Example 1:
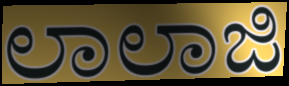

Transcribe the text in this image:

ಲಾಲಾಜಿ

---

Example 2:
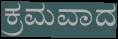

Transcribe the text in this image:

ಕ್ರಮವಾದ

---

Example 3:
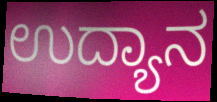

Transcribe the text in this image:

ಉದ್ಯಾನ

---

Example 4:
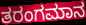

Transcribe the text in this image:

ತರಂಗಮಾನ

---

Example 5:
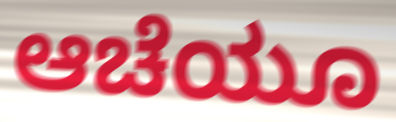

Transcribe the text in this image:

ಆಚೆಯೂ